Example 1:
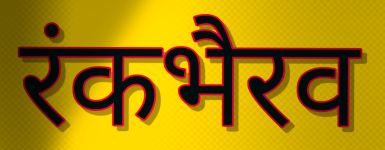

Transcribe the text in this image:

रंकभैरव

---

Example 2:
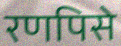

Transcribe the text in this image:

रणपिसे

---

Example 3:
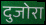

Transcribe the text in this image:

दुजोरा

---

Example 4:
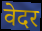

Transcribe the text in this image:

वेदर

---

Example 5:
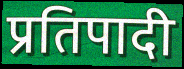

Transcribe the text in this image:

प्रतिपादी